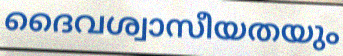
ദൈവശ്വാസീയതയും